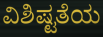
ವಿಶಿಷ್ಟತೆಯ